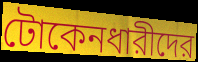
টোকেনধারীদের